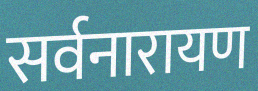
सर्वनारायण